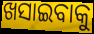
ଖସାଇବାକୁ